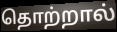
தொற்றால்